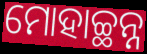
ମୋହାଚ୍ଛନ୍ନ